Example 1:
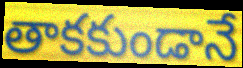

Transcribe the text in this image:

తాకకుండానే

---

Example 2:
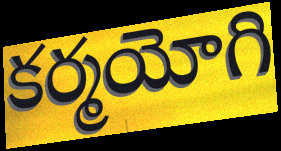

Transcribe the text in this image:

కర్మయోగి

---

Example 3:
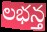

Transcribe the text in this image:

లభన్త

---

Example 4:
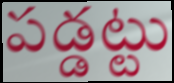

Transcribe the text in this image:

పడ్డట్టు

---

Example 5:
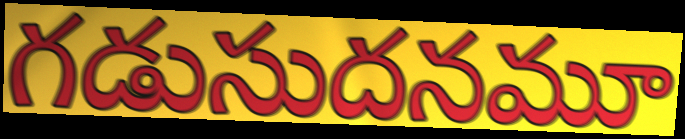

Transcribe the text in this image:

గడుసుదనమూ